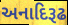
અનાદિરૂઢ